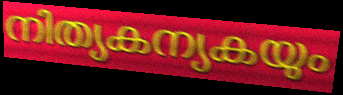
നിത്യകന്യകയും